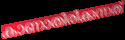
കാണാതിരിക്കുന്നത്